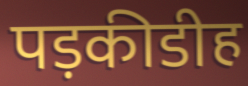
पड़कीडीह